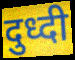
दुध्दी